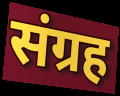
संग्रह